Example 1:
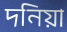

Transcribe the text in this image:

দনিয়া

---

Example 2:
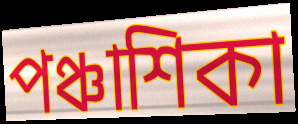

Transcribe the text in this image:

পঞ্চাশিকা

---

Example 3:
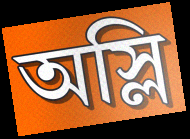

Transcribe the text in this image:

অস্লি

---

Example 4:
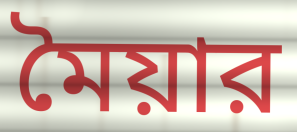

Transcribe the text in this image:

মৈয়ার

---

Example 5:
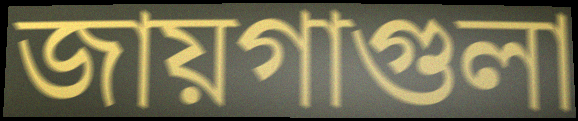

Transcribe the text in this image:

জায়গাগুলা